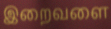
இறைவளை